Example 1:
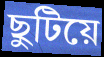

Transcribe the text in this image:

ছুটিয়ে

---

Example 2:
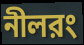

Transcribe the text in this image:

নীলরং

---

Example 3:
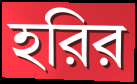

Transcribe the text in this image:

হরির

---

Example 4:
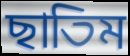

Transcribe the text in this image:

ছাতিম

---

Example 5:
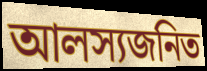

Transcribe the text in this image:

আলস্যজনিত